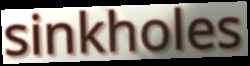
sinkholes